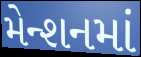
મેન્શનમાં